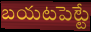
బయటపెట్టే